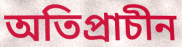
অতিপ্রাচীন